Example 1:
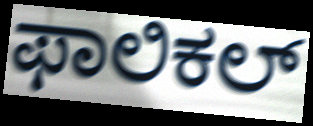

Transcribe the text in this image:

ಫಾಲಿಕಲ್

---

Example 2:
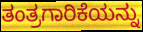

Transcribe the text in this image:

ತಂತ್ರಗಾರಿಕೆಯನ್ನು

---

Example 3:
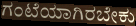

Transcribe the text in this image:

ಗಂಟೆಯಾಗಿರಬೇಕು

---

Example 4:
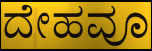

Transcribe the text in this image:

ದೇಹವೂ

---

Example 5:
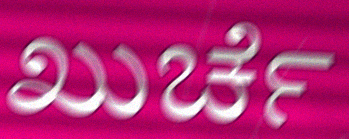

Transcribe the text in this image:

ಖುರ್ಚೆ